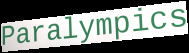
Paralympics